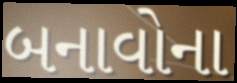
બનાવોના